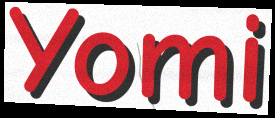
Yomi